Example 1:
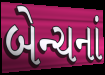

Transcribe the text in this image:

બેન્ચનાં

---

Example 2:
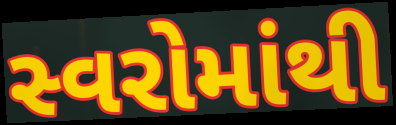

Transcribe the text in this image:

સ્વરોમાંથી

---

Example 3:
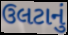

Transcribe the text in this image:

ઉલટાનું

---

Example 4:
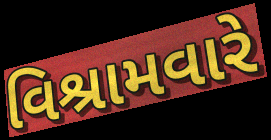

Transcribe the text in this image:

વિશ્રામવારે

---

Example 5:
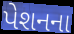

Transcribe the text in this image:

પેશનના